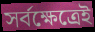
সর্বক্ষেত্রেই